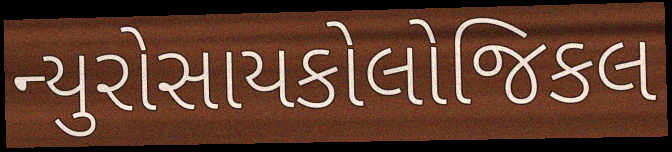
ન્યુરોસાયકોલોજિકલ